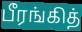
பீரங்கித்